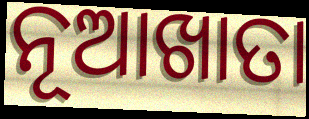
ନୂଆଖାତା